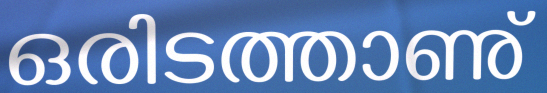
ഒരിടത്താണു്